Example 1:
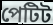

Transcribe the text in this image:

পেটিট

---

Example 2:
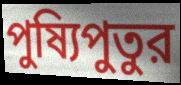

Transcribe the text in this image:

পুষ্যিপুতুর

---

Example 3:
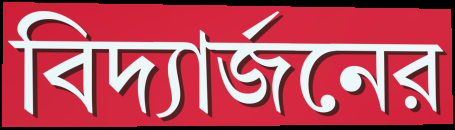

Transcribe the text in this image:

বিদ্যার্জনের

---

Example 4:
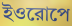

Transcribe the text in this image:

ইওরোপে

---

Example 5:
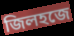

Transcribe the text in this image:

জিলহজে